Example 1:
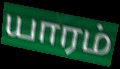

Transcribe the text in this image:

யாரம்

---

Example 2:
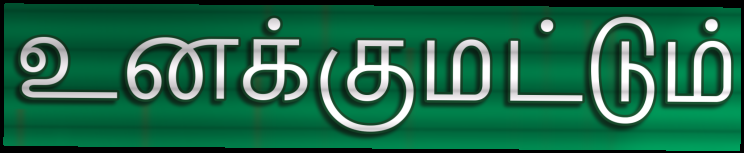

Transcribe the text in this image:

உனக்குமட்டும்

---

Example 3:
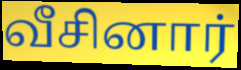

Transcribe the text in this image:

வீசினார்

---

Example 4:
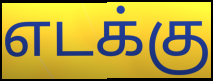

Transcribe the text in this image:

எடக்கு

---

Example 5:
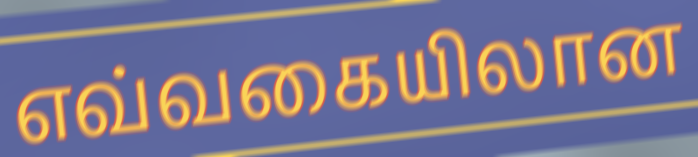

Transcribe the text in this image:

எவ்வகையிலான